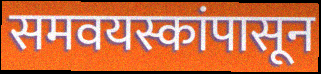
समवयस्कांपासून